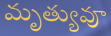
మృత్యువూ